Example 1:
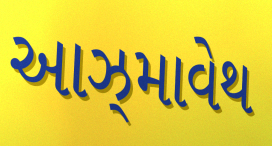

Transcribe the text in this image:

આઝ્માવેથ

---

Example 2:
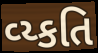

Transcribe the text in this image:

વ્ય્કતિ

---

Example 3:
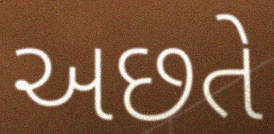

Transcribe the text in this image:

અછતે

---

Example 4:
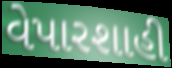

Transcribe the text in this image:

વેપારશાહી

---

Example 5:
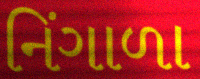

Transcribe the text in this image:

નિંગાળા